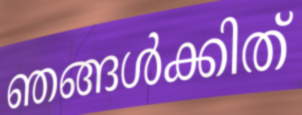
ഞങ്ങൾക്കിത്